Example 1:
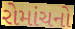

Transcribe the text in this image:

રોમાંચનો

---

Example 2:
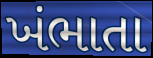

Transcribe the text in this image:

ખંભાતા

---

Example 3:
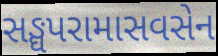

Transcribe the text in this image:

સઙ્ઘપરામાસવસેન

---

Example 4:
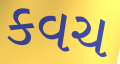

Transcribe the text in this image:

કવચ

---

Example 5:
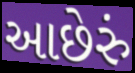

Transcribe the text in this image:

આછેરું